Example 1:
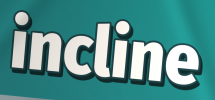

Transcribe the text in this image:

incline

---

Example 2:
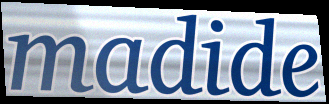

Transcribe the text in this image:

madide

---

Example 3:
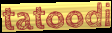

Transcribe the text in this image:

tatoodi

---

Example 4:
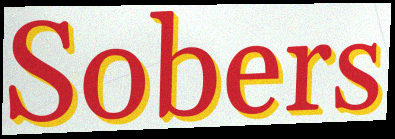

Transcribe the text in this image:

Sobers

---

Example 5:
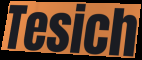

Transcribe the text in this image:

Tesich